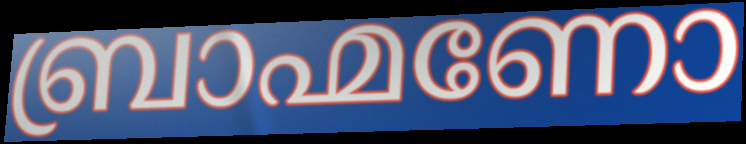
ബ്രാഹ്മണോ